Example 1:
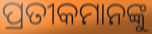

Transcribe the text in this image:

ପ୍ରତୀକମାନଙ୍କୁ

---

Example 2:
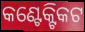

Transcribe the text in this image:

କଣ୍ଟେକ୍ଟିକଟ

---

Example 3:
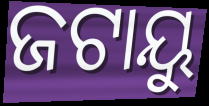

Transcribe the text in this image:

ଜଟାୟୁ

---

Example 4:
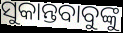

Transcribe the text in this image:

ସୁକାନ୍ତବାବୁଙ୍କୁ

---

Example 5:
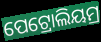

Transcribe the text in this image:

ପେଟ୍ରୋଲିୟମ୍ର